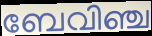
ബേവിഞ്ച